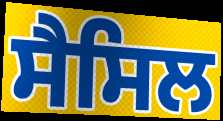
ਸੈਸਿਲ